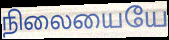
நிலையையே